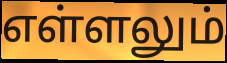
எள்ளலும்